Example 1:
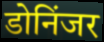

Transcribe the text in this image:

डोनिंजर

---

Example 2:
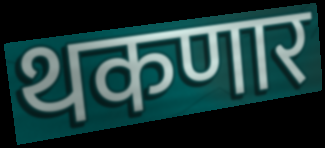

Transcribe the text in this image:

थकणार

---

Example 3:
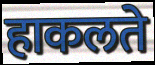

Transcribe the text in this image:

हाकलते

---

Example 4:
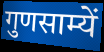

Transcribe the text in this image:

गुणसाम्यें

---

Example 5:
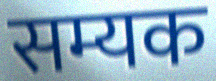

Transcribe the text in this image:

सम्‍यक